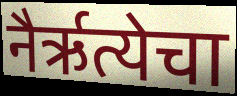
नैर्ऋत्येचा